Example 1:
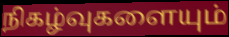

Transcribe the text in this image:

நிகழ்வுகளையும்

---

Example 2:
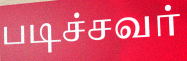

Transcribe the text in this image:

படிச்சவர்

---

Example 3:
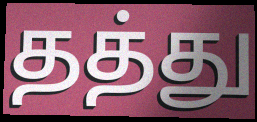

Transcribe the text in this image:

தத்து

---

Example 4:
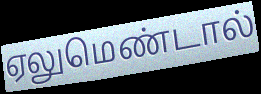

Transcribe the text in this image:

ஏலுமெண்டால்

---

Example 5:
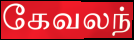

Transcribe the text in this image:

கேவலந்